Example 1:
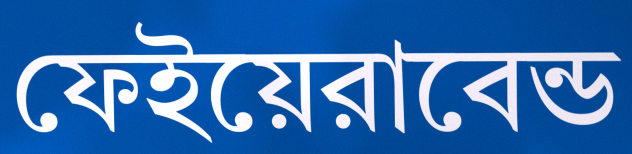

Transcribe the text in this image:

ফেইয়েরাবেন্ড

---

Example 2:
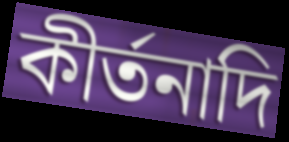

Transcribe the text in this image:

কীর্তনাদি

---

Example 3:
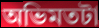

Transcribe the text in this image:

অভিমতটা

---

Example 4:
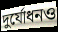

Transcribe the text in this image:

দুর্যোধনও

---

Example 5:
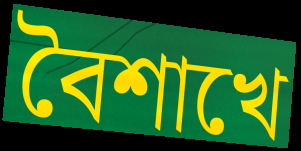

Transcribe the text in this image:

বৈশাখে